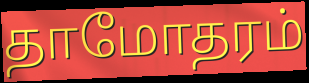
தாமோதரம்